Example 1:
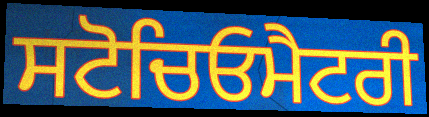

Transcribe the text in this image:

ਸਟੋਚਿਓਮੈਟਰੀ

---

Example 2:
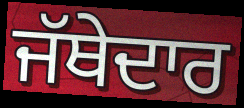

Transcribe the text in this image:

ਜੱਥੇਦਾਰ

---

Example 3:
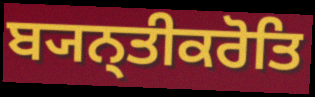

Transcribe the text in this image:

ਬ੍ਯਨ੍ਤੀਕਰੋਤਿ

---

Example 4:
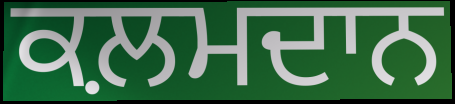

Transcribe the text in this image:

ਕ਼ਲਮਦਾਨ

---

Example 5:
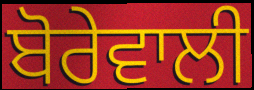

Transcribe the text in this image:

ਬੋਰੇਵਾਲੀ